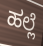
ಹಲ್ಲೆ